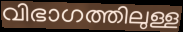
വിഭാഗത്തിലുള്ള